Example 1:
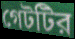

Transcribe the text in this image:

গেটটির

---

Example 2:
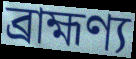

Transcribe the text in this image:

ব্রাহ্মণ্য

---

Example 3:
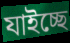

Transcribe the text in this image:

যাইচ্ছে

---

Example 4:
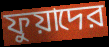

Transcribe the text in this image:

ফুয়াদের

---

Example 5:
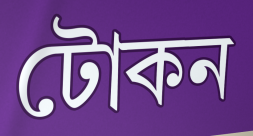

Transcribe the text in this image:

টোকন